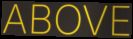
ABOVE